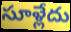
సూళ్లేదు